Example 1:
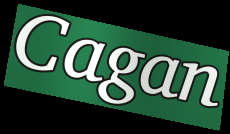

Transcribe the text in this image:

Cagan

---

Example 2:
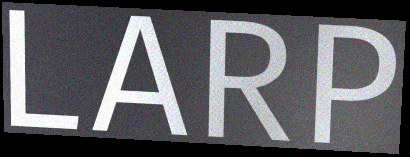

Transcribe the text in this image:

LARP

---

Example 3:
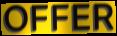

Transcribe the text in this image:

OFFER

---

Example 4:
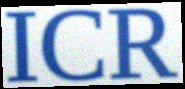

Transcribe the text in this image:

ICR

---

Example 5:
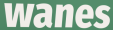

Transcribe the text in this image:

wanes